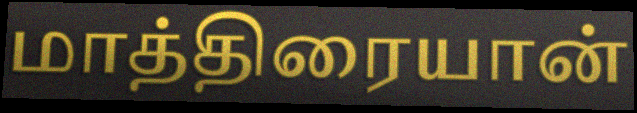
மாத்திரையான்